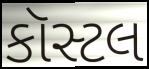
કૉસ્ટલ